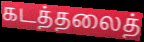
கடத்தலைத்